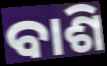
ବାଶି